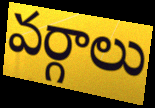
వర్గాలు